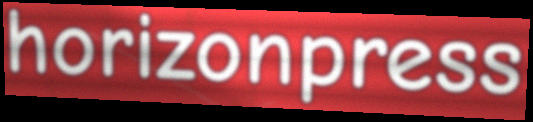
horizonpress